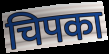
चिपका